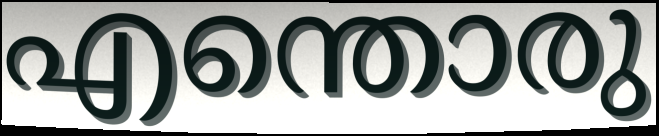
എന്തൊരു